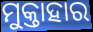
ମୁକ୍ତାହାର